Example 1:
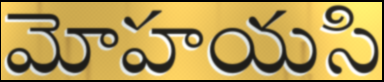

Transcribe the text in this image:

మోహయసి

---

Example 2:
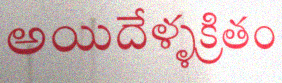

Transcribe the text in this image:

అయిదేళ్ళక్రితం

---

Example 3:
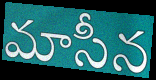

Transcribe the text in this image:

మాసీన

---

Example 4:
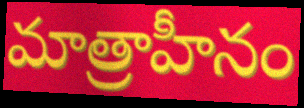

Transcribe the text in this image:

మాత్రాహీనం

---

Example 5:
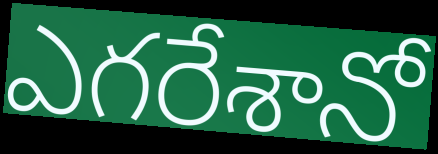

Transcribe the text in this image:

ఎగరేశానో